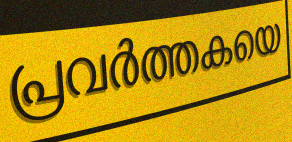
പ്രവർത്തകയെ